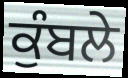
ਕੁੰਬਲੇ